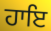
ਹਾਇ